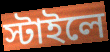
স্টাইলে